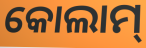
କୋଲାମ୍